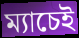
ম্যাচেই